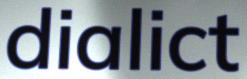
dialict